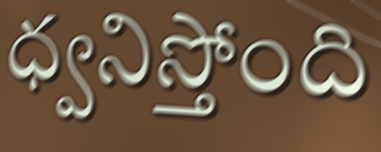
ధ్వనిస్తోంది